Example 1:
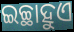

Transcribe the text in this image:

ଇଚ୍ଛାହୁଏ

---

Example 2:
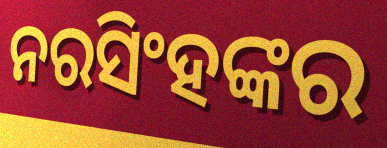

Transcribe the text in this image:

ନରସିଂହଙ୍କର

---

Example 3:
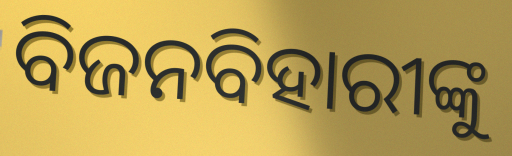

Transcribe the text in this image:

ବିଜନବିହାରୀଙ୍କୁ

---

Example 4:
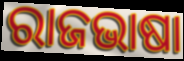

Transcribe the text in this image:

ରାଜଭାଷା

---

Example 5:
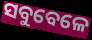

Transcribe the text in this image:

ସବୁବେଳେ